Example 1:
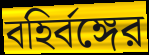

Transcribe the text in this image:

বহির্বঙ্গের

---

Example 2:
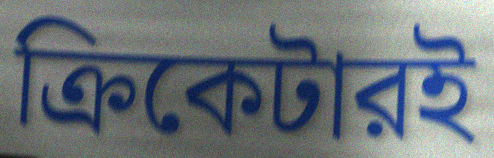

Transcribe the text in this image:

ক্রিকেটারই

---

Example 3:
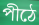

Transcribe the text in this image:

পীঠে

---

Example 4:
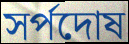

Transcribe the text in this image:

সর্পদোষ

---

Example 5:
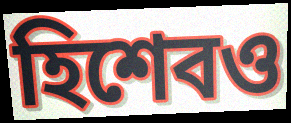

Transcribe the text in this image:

হিশেবও